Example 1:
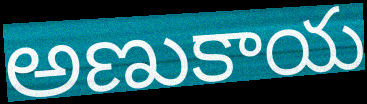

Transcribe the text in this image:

అణుకాయ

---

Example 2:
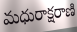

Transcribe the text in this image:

మధురాక్షరాణి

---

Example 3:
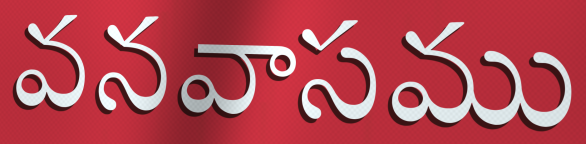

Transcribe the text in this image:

వనవాసము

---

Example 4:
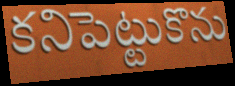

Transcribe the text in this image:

కనిపెట్టుకొను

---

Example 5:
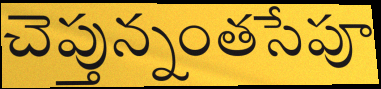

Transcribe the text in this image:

చెప్తున్నంతసేపూ